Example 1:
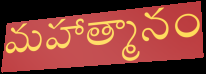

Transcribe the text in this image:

మహాత్మానం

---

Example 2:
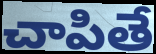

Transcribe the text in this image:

చాపితే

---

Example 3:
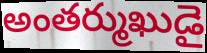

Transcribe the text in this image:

అంతర్ముఖుడై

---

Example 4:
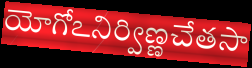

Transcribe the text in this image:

యోగోఽనిర్విణ్ణచేతసా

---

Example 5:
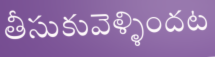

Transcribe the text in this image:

తీసుకువెళ్ళిందట